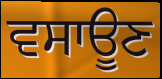
ਵਸਾਊਣ